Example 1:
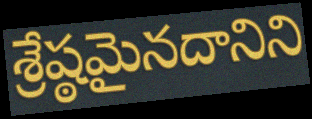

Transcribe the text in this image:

శ్రేష్ఠమైనదానిని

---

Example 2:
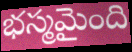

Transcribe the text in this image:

భస్మమైంది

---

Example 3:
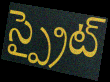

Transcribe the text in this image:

స్ప్రైట్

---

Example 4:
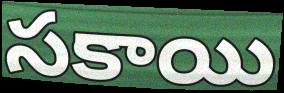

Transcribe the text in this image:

సకాయి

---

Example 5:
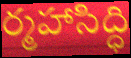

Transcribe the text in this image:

ర్మహాసిద్ధి